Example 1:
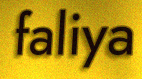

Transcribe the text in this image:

faliya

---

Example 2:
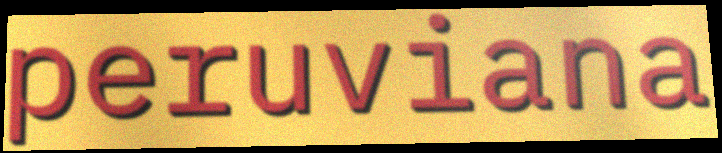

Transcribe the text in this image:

peruviana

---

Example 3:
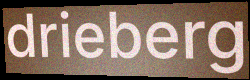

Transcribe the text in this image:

drieberg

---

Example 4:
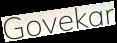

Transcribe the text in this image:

Govekar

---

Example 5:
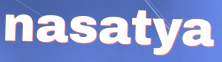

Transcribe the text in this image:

nasatya